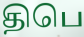
திபெ